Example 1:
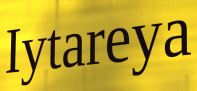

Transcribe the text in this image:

Iytareya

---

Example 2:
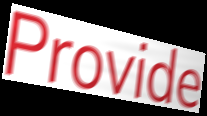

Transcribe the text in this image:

Provide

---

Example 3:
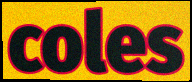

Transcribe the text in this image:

coles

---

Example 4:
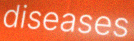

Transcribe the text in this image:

diseases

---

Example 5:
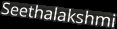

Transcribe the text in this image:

Seethalakshmi